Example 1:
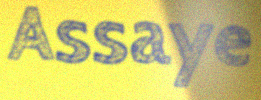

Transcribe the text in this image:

Assaye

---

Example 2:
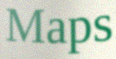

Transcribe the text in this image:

Maps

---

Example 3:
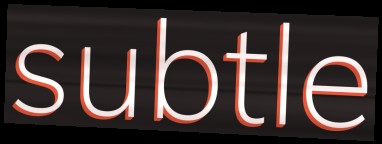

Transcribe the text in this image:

subtle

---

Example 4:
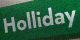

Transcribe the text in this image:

Holliday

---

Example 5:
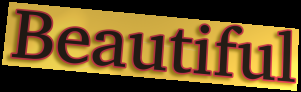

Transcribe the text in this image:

Beautiful